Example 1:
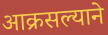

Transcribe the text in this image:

आक्रसल्याने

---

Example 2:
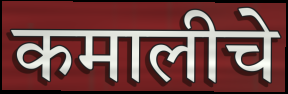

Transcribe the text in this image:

कमालीचे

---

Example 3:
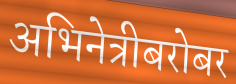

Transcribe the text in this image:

अभिनेत्रीबरोबर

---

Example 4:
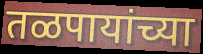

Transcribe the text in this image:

तळपायांच्या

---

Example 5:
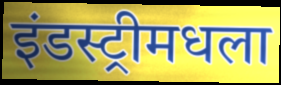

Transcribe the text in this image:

इंडस्ट्रीमधला